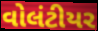
વોલંટીયર